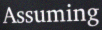
Assuming